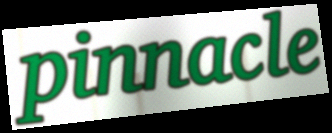
pinnacle